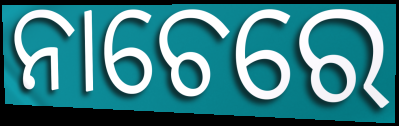
ନାଚେରେ